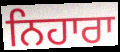
ਨਿਹਾਰਾ